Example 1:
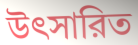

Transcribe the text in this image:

উৎসারিত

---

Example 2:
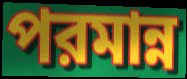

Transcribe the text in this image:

পরমান্ন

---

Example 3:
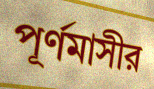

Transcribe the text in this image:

পূর্ণমাসীর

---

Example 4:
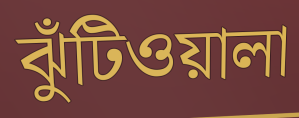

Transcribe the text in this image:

ঝুঁটিওয়ালা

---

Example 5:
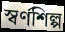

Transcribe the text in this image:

স্বর্ণশিল্প